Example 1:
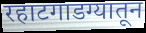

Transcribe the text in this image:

रहाटगाडग्यातून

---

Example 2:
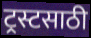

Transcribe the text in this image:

ट्रस्टसाठी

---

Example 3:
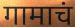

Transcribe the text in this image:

गामाचं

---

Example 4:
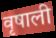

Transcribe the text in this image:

वृषाली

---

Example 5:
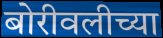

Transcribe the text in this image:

बोरीवलीच्या